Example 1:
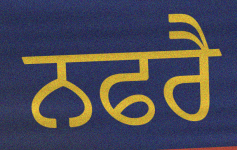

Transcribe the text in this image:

ਨਫਰੈ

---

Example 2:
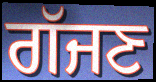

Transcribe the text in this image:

ਗੱਜਣ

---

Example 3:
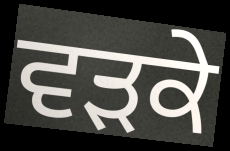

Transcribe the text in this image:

ਵੜਕੇ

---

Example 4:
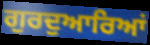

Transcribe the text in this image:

ਗੁਰਦੁਆਰਿਆਂ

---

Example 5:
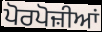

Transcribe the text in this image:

ਪੋਰਪੋਜ਼ੀਆਂ